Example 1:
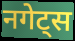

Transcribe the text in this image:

नगेट्स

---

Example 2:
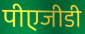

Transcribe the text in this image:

पीएजीडी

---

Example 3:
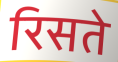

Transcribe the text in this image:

रिसते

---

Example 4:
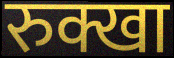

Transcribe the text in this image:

रुक्खा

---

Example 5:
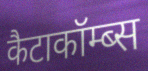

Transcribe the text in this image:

कैटाकॉम्ब्स